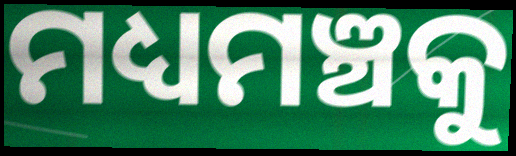
ମଧ୍ୟମଞ୍ଚକୁ